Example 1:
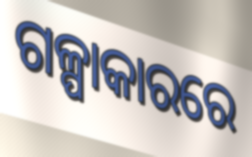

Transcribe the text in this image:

ଗଳ୍ପାକାରରେ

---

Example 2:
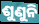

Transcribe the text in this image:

ଶୁଣୁନି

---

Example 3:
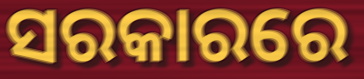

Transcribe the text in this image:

ସରକାରରେ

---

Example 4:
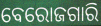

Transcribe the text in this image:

ବେରୋଜଗାରି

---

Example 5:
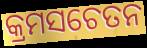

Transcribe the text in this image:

କ୍ରମସଚେତନ